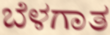
ಬೆಳಗಾತ